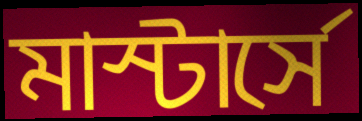
মাস্টার্সে